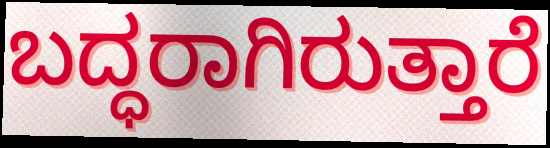
ಬದ್ಧರಾಗಿರುತ್ತಾರೆ